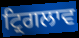
ਟ੍ਰਿਗਲਾਵ